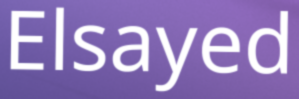
Elsayed